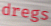
dregs